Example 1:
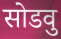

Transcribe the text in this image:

सोडवु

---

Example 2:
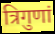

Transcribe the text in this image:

त्रिगुणां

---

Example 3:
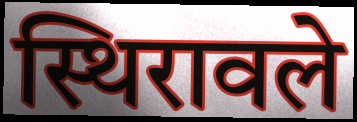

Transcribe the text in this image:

स्थिरावले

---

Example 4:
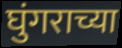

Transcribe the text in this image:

घुंगराच्या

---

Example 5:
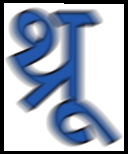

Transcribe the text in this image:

थ्रू